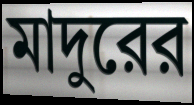
মাদুরের